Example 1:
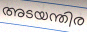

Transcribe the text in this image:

അടയന്തിര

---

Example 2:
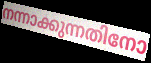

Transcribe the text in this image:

നന്നാക്കുന്നതിനോ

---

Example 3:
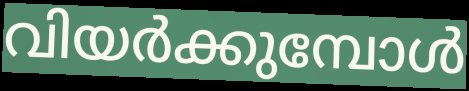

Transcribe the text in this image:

വിയർക്കുമ്പോൾ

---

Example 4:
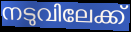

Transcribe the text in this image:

നടുവിലേക്ക്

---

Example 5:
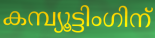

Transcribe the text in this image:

കമ്പ്യൂട്ടിംഗിന്